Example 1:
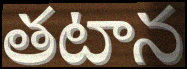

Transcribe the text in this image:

తటాన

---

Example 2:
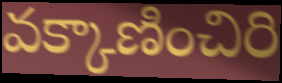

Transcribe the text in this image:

వక్కాణించిరి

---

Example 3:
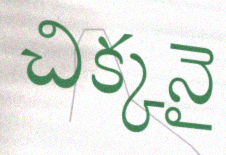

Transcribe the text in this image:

చిక్కనై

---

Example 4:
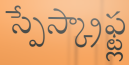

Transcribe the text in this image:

స్పేస్క్రాఫ్ట్ల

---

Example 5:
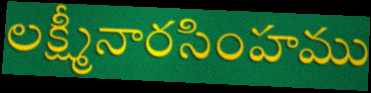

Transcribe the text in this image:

లక్ష్మీనారసింహము